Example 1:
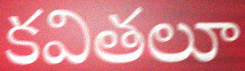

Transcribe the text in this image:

కవితలూ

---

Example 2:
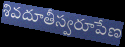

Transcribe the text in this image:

శివదూతీస్వరూపేణ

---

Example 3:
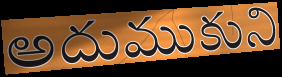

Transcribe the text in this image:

అదుముకుని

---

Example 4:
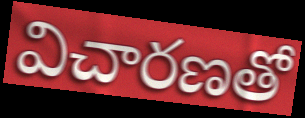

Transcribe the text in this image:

విచారణతో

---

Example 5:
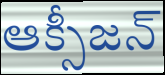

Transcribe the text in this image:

ఆక్సీజన్